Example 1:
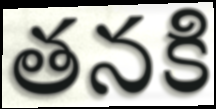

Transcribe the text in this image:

తనకి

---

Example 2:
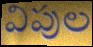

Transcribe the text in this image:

విపుల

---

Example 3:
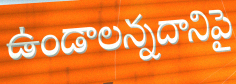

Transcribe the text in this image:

ఉండాలన్నదానిపై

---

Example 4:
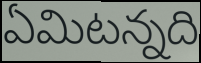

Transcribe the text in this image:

ఏమిటన్నది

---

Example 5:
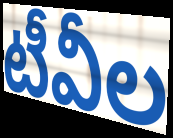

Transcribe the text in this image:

టీవీల